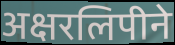
अक्षरलिपीने